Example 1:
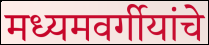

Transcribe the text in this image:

मध्यमवर्गीयांचे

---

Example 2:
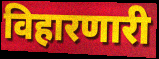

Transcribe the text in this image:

विहारणारी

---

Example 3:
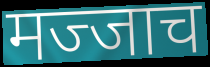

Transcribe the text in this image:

मज्जाच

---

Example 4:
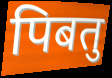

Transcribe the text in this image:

पिबतु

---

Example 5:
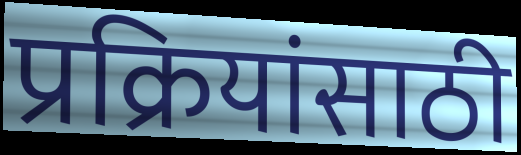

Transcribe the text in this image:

प्रक्रियांसाठी